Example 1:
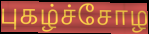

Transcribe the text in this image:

புகழ்ச்சோழ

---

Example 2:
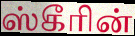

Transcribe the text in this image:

ஸ்கீரின்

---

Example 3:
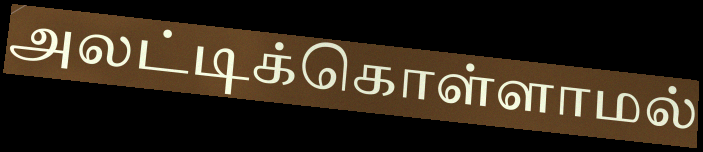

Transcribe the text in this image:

அலட்டிக்கொள்ளாமல்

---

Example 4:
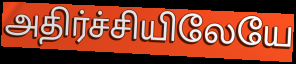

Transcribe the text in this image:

அதிர்ச்சியிலேயே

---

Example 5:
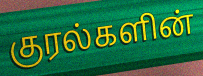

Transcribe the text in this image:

குரல்களின்